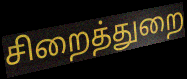
சிறைத்துறை